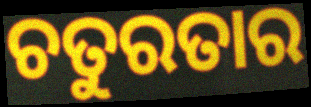
ଚତୁରତାର